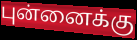
புன்னைக்கு